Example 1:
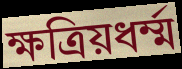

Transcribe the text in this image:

ক্ষত্রিয়ধর্ম্ম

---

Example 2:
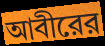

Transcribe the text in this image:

আবীরের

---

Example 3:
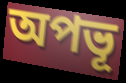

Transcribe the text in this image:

অপভূ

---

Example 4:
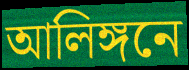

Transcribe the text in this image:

আলিঙ্গনে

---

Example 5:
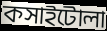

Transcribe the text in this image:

কসাইটোলা